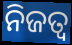
ନିଜତ୍ବ